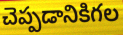
చెప్పడానికిగల